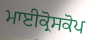
ਮਾਈਕ੍ਰੋਸਕੋਪ